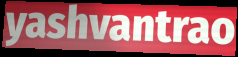
yashvantrao